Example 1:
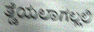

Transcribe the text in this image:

ತ್ಡೆಯಲಾಗಲ್ಲಲಿ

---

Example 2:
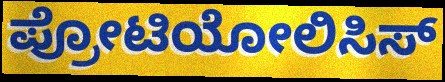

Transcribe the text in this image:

ಪ್ರೋಟಿಯೋಲಿಸಿಸ್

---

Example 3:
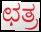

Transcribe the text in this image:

ಛತ್ರ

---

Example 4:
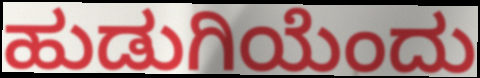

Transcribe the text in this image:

ಹುಡುಗಿಯೆಂದು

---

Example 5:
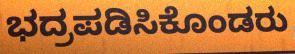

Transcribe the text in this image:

ಭದ್ರಪಡಿಸಿಕೊಂಡರು